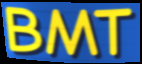
BMT